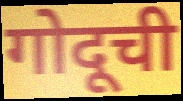
गोदूची